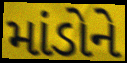
માંડોને